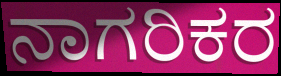
ನಾಗರಿಕರ